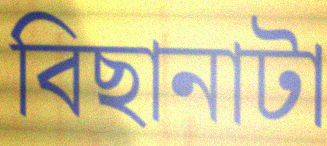
বিছানাটা